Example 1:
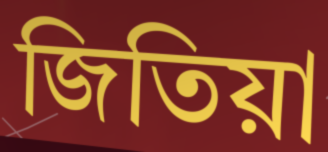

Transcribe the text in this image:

জিতিয়া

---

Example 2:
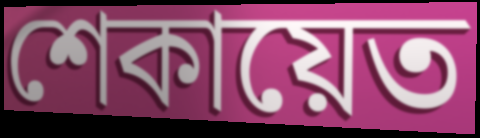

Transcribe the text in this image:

শেকায়েত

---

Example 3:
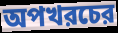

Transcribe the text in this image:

অপখরচের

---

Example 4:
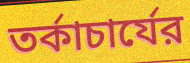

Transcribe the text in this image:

তর্কাচার্যের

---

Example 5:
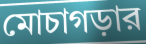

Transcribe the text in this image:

মোচাগড়ার